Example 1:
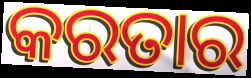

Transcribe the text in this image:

କରତାର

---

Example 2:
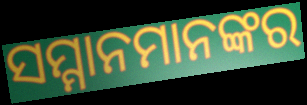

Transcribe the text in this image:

ସମ୍ମାନମାନଙ୍କର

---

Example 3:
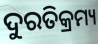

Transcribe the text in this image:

ଦୁରତିକ୍ରମ୍ୟ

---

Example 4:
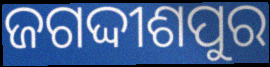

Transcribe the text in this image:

ଜଗଦ୍ଦୀଶପୁର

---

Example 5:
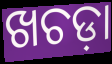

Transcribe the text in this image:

ଖଚଡ଼ା